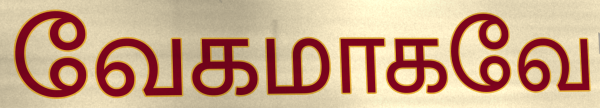
வேகமாகவே